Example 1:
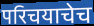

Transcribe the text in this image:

परिचयाचेच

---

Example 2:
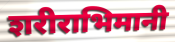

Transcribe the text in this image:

शरीराभिमानी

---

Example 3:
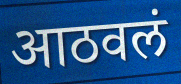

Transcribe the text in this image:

आठवलं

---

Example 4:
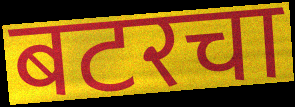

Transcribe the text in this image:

बटरचा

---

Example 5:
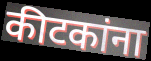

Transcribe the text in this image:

कीटकांना